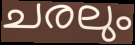
ചരലും